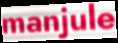
manjule